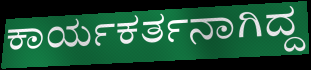
ಕಾರ್ಯಕರ್ತನಾಗಿದ್ದ